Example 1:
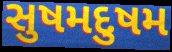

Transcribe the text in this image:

સુષમદુષમ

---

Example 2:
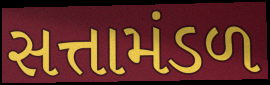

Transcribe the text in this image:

સત્તામંડળ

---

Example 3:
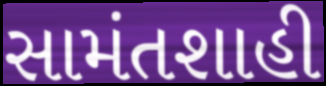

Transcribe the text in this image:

સામંતશાહી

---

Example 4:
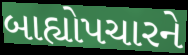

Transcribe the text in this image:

બાહ્યોપચારને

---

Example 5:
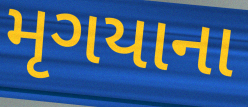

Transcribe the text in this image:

મૃગયાના